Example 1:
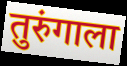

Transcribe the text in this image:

तुरुंगाला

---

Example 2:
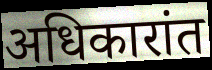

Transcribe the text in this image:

अधिकारांत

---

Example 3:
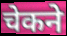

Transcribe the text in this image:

चेकने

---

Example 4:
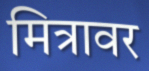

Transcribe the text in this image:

मित्रावर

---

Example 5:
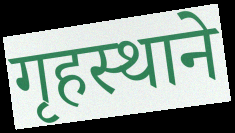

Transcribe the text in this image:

गृहस्थाने